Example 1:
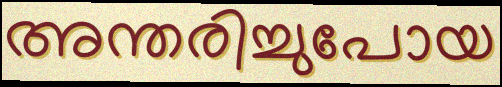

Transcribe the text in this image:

അന്തരിച്ചുപോയ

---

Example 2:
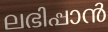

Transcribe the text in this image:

ലഭിപ്പാൻ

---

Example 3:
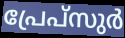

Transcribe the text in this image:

പ്രേപ്സുർ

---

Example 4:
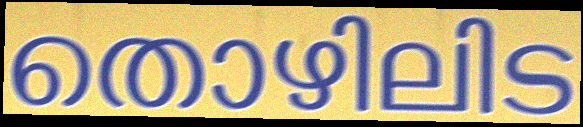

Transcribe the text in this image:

തൊഴിലിട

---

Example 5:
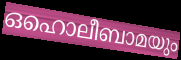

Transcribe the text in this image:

ഒഹൊലീബാമയും